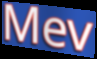
Mev